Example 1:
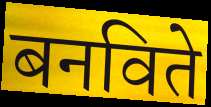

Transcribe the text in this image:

बनविते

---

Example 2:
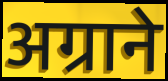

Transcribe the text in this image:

अग्राने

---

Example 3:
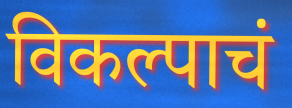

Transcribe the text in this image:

विकल्पाचं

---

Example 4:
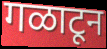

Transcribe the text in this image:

गळाटून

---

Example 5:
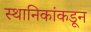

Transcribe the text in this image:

स्थानिकांकडून